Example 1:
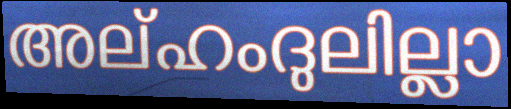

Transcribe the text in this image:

അല്ഹംദുലില്ലാ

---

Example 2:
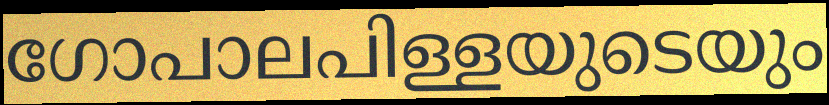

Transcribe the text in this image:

ഗോപാലപിള്ളയുടെയും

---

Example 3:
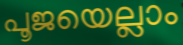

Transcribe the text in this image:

പൂജയെല്ലാം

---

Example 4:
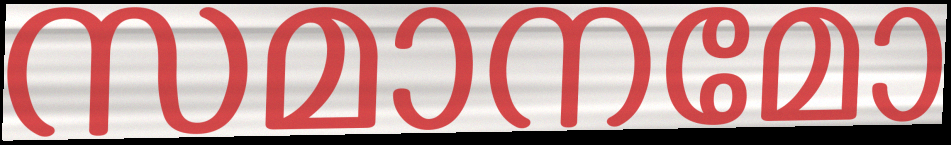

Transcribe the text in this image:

സമാനമോ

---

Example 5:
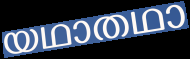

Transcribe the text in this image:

യഥാതഥാ